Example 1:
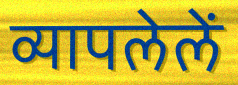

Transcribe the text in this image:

व्यापलेलें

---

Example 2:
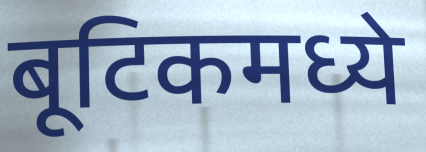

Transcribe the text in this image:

बूटिकमध्ये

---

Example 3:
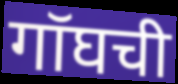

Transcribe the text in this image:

गॉघची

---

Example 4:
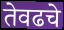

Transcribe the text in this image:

तेवढचे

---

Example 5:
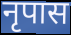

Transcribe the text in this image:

नृपास